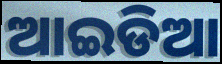
ଆଇଡିଆ